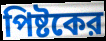
পিষ্টকের